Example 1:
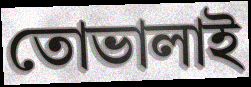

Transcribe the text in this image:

তোভালাই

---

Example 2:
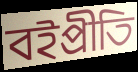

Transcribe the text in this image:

বইপ্রীতি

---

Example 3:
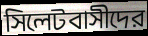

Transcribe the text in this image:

সিলেটবাসীদের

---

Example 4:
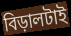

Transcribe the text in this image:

বিড়ালটাই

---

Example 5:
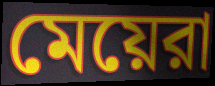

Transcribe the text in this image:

মেয়েরা